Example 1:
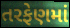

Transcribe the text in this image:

તરફેણમાં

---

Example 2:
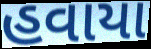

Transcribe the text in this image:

હવાયા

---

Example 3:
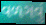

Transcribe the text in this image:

વળગવું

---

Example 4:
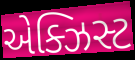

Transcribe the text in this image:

એક્ઝિસ્ટ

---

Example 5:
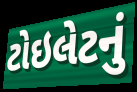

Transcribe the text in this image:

ટોઇલેટનું